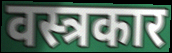
वस्त्रकार